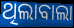
ଥିଲାବାଲା